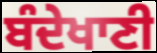
ਬੰਦੇਖਾਣੀ